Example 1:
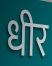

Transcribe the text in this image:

धीर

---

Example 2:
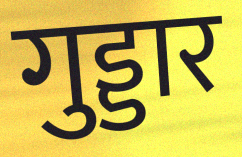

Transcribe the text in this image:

गुड्डार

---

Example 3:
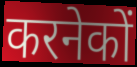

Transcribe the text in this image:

करनेकों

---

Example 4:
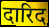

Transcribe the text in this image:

दारिद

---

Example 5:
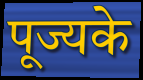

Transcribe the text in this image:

पूज्यके